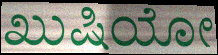
ಖುಷಿಯೋ